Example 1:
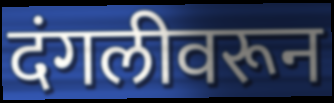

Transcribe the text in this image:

दंगलीवरून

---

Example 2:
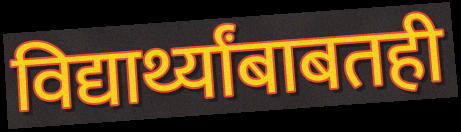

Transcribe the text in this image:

विद्यार्थ्यांबाबतही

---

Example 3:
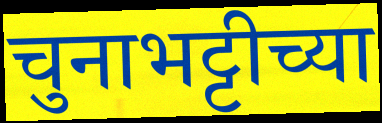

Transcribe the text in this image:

चुनाभट्टीच्या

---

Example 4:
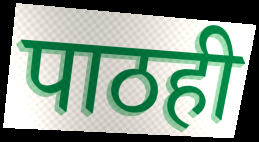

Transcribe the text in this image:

पाठही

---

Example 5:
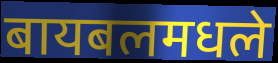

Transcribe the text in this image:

बायबलमधले